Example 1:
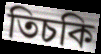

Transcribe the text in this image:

তিচকি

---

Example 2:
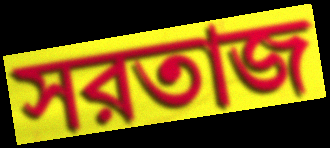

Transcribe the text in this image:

সরতাজ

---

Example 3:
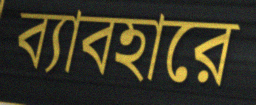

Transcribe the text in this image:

ব্যাবহারে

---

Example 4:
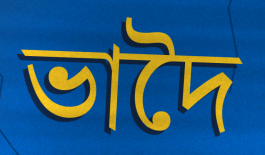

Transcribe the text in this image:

ভাদৈ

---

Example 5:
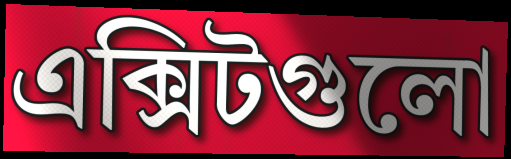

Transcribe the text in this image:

এক্সিটগুলো